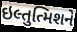
ઇલ્તુત્મિશને